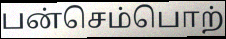
பன்செம்பொற்